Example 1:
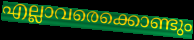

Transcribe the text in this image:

എല്ലാവരെക്കൊണ്ടും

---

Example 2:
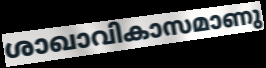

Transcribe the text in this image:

ശാഖാവികാസമാണു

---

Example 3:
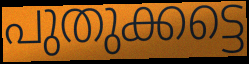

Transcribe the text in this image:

പുതുക്കട്ടെ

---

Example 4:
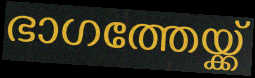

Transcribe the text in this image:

ഭാഗത്തേയ്ക്ക്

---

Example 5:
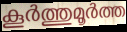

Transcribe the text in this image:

കൂർത്തുമൂർത്ത